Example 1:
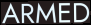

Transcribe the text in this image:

ARMED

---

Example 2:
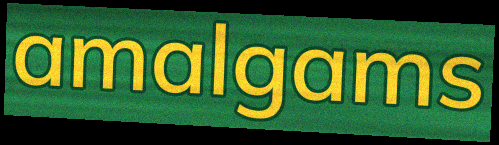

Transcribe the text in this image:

amalgams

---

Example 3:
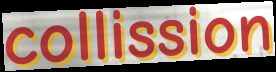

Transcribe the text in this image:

collission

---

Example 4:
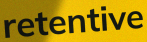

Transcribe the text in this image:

retentive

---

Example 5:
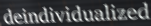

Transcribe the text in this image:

deindividualized